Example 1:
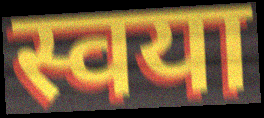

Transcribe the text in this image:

स्वया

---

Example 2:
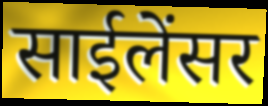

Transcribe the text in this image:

साईलेंसर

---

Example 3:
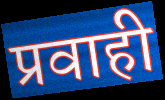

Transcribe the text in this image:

प्रवाही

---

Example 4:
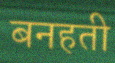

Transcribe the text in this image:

बनहती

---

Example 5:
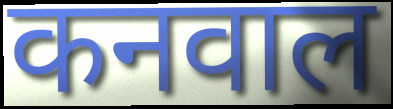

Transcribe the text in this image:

कनवाल